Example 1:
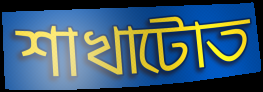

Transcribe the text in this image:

শাখাটোত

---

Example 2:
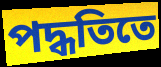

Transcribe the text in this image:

পদ্ধতিতে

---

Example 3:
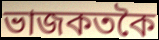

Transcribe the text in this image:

ভাজকতকৈ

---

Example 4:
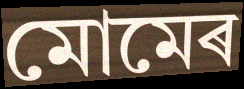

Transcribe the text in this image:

মোমেৰ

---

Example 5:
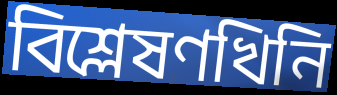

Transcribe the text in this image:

বিশ্লেষণখিনি